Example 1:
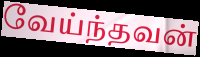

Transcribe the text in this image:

வேய்ந்தவன்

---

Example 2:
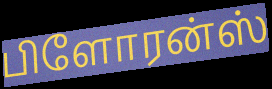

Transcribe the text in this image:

பிளோரன்ஸ்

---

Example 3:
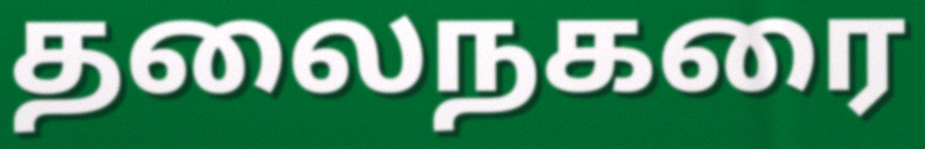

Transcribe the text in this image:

தலைநகரை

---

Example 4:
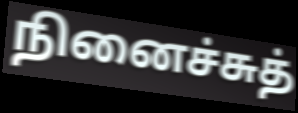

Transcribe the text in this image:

நினைச்சுத்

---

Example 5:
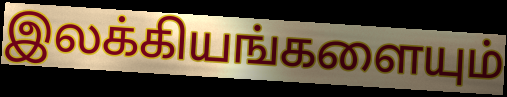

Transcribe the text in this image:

இலக்கியங்களையும்